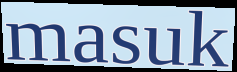
masuk